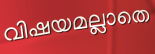
വിഷയമല്ലാതെ